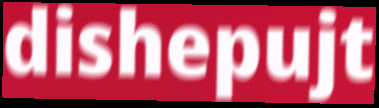
dishepujt